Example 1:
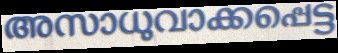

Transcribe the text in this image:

അസാധുവാക്കപ്പെട്ട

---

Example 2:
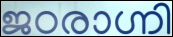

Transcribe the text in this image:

ജഠരാഗ്നി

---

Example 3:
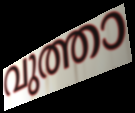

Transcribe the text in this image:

വുത്താ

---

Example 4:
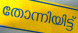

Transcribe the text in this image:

തോന്നിയിട്ട്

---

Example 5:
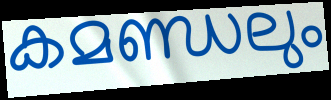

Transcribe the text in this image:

കമണ്ഡലും